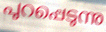
പുറപ്പെടുന്നു